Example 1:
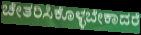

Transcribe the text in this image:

ಚೇತರಿಸಿಕೊಳ್ಳಬೇಕಾದರೆ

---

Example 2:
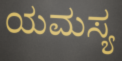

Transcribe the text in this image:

ಯಮಸ್ಯ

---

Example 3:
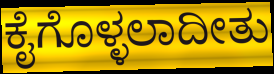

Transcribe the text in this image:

ಕೈಗೊಳ್ಳಲಾದೀತು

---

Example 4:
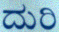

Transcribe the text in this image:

ದುರಿ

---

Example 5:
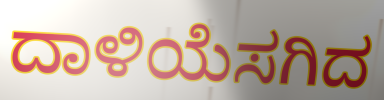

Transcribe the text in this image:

ದಾಳಿಯೆಸಗಿದ